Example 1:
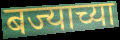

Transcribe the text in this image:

बज्याच्या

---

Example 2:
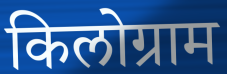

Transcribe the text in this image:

किलोग्राम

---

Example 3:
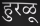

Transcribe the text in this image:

हुरळू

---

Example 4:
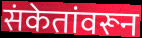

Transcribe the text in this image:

संकेतांवरून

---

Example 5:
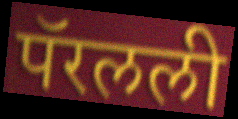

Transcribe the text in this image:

पॅरलली